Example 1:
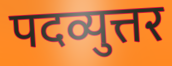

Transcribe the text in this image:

पदव्युत्तर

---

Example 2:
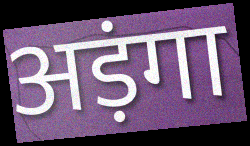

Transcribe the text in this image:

अड़ंगा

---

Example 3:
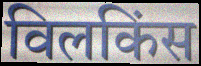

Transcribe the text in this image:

विलकिंस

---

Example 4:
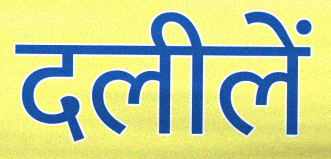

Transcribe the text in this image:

दलीलें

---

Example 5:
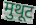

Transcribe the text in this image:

मुथूट